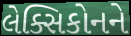
લેક્સિકોનને